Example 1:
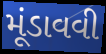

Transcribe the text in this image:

મૂંડાવવી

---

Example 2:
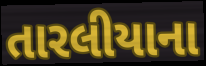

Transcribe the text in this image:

તારલીયાના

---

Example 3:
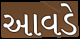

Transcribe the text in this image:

આવડે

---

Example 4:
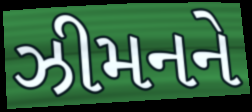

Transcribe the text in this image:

ઝીમનને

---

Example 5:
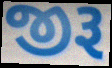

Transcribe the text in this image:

જીરૂ